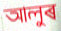
আলুৰ